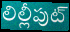
లిల్లీపుట్